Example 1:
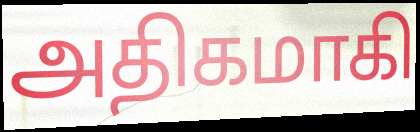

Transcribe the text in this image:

அதிகமாகி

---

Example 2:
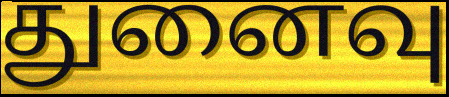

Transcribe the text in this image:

துனைவு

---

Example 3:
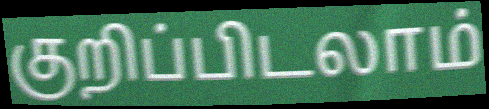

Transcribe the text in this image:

குறிப்பிடலாம்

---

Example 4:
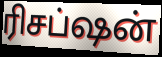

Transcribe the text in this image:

ரிசப்ஷன்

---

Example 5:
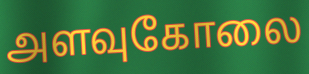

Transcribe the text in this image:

அளவுகோலை